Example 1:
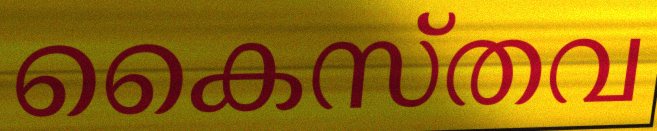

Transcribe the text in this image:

കൈസ്തവ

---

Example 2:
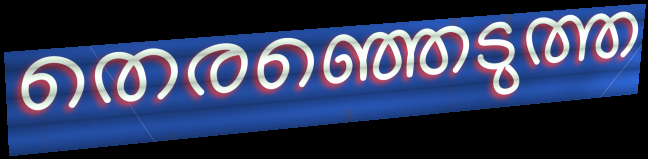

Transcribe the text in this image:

തെരഞ്ഞെടുത്ത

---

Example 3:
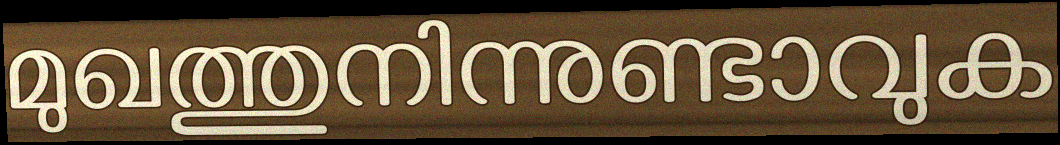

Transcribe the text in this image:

മുഖത്തുനിന്നുണ്ടാവുക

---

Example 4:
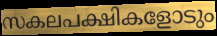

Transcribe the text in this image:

സകലപക്ഷികളോടും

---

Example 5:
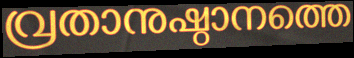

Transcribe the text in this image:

വ്രതാനുഷ്ഠാനത്തെ